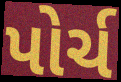
પોર્ચ